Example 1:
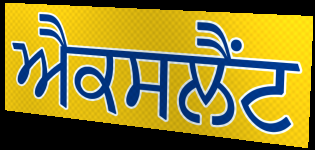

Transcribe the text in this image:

ਐਕਸਲੈਂਟ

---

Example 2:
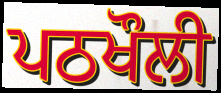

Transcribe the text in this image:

ਪਠਖੌਲੀ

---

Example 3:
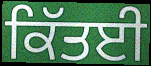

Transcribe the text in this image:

ਕਿੱਤਈ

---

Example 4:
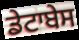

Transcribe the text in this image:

ਡੇਟਾਬੇਸ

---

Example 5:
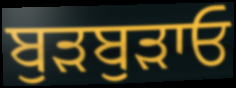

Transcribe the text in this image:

ਬੁੜਬੁੜਾਓ